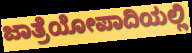
ಜಾತ್ರೆಯೋಪಾದಿಯಲ್ಲಿ